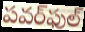
పవర్‌ఫుల్